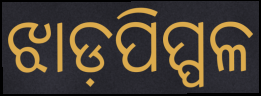
ଝାଡ଼ପିପ୍ପଳ